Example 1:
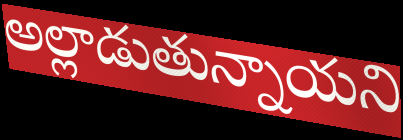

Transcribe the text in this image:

అల్లాడుతున్నాయని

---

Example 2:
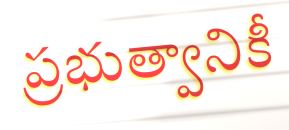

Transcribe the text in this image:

ప్రభుత్వానికీ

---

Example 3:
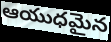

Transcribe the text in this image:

ఆయుధమైన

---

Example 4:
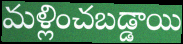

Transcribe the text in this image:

మళ్లించబడ్డాయి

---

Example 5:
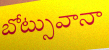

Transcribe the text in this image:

బోట్సువానా